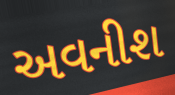
અવનીશ